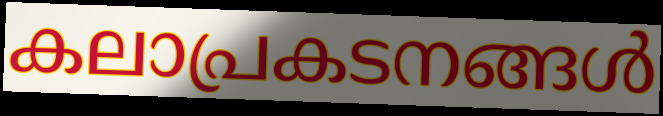
കലാപ്രകടനങ്ങൾ